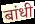
बांधी